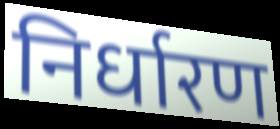
निर्धारण